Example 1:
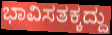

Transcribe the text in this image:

ಭಾವಿಸತಕ್ಕದ್ದು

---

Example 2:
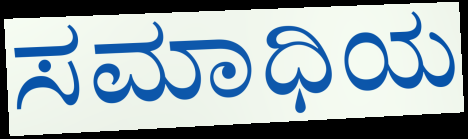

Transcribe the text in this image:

ಸಮಾಧಿಯ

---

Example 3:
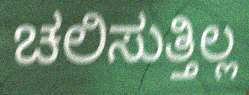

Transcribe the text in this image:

ಚಲಿಸುತ್ತಿಲ್ಲ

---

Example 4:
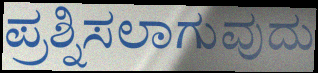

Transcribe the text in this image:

ಪ್ರಶ್ನಿಸಲಾಗುವುದು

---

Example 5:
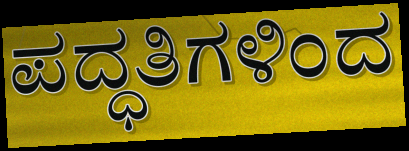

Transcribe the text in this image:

ಪದ್ಧತಿಗಳಿಂದ